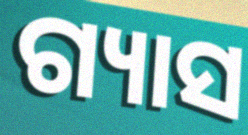
ଗ୍ୟାସ